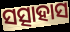
ସତ୍ସାହାସ